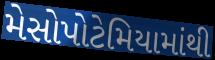
મેસોપોટેમિયામાંથી